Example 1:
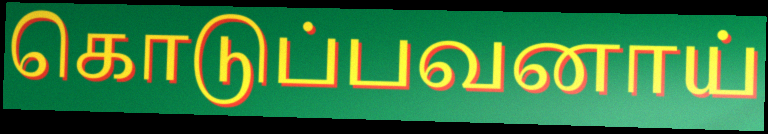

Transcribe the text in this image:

கொடுப்பவனாய்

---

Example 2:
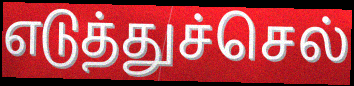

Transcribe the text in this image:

எடுத்துச்செல்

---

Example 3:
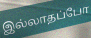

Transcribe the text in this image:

இல்லாதப்போ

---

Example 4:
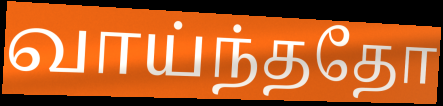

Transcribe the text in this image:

வாய்ந்ததோ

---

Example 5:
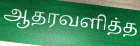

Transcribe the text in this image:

ஆதரவளித்த